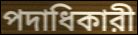
পদাধিকারী